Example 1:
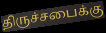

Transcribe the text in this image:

திருச்சபைக்கு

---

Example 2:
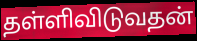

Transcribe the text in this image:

தள்ளிவிடுவதன்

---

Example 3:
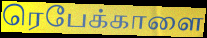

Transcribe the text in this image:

ரெபேக்காளை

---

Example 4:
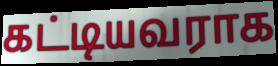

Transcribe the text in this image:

கட்டியவராக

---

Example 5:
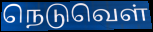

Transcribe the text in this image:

நெடுவெள்